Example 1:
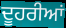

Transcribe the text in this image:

ਦੂਹਰੀਆਂ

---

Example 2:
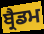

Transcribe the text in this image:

ਬ੍ਰੈਡਮ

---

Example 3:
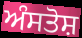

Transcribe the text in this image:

ਅੰਸਤੋਸ਼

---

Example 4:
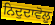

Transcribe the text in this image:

ਨਿਦੁਦਾਵੋਲੂ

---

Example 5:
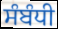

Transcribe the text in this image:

ਸੰਬੰਧੀ